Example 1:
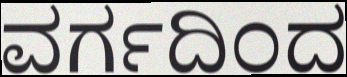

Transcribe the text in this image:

ವರ್ಗದಿಂದ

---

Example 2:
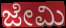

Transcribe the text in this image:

ಜೇಮಿ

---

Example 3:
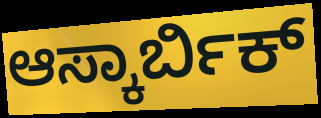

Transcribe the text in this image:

ಆಸ್ಕಾರ್ಬಿಕ್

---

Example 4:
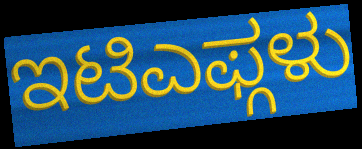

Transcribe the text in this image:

ಇಟಿಎಫ್ಗಳು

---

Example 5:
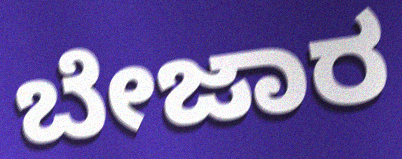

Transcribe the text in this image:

ಬೇಜಾರ